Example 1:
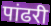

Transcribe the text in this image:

पांढरी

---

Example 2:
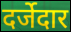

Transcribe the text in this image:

दर्जेदार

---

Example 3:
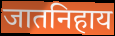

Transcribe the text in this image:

जातनिहाय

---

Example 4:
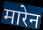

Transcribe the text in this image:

मारेन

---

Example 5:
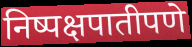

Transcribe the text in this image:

निष्पक्षपातीपणे